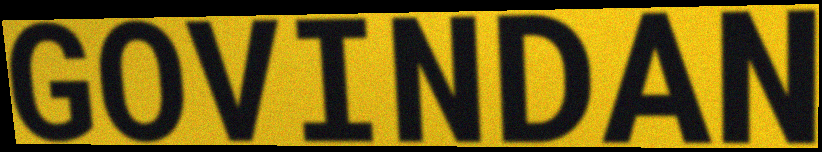
GOVINDAN